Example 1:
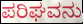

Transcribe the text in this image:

ಪರಿಘವನು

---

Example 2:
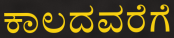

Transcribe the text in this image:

ಕಾಲದವರೆಗೆ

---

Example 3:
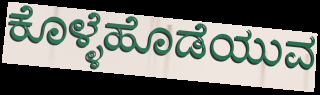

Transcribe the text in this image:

ಕೊಳ್ಳೆಹೊಡೆಯುವ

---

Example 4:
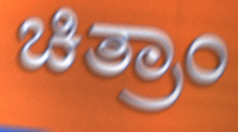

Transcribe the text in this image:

ಚಿತ್ರಾಂ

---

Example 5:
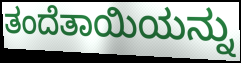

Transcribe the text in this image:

ತಂದೆತಾಯಿಯನ್ನು